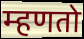
म्हणतो